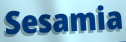
Sesamia